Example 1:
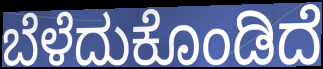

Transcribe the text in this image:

ಬೆಳೆದುಕೊಂಡಿದೆ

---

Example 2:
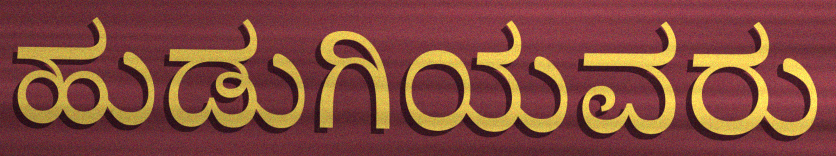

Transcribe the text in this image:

ಹುಡುಗಿಯವರು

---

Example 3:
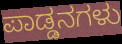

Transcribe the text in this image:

ಪಾಡ್ಡನಗಳು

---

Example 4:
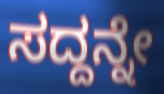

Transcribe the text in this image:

ಸದ್ದನ್ನೇ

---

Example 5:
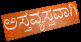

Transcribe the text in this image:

ಅಸ್ತವ್ಯಸ್ತವಾಗಿ